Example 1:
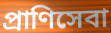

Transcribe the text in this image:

প্রাণিসেবা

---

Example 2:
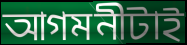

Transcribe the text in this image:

আগমনীটাই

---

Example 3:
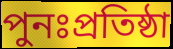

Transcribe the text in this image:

পুনঃপ্রতিষ্ঠা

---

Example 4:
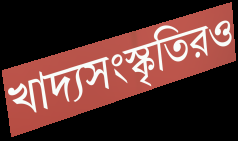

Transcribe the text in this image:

খাদ্যসংস্কৃতিরও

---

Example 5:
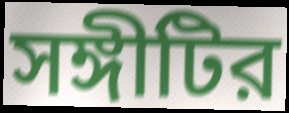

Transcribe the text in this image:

সঙ্গীটির